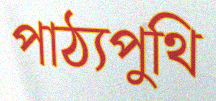
পাঠ্যপুথি